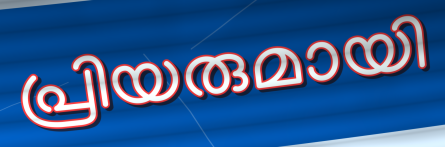
പ്രിയരുമായി